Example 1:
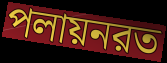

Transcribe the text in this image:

পলায়নরত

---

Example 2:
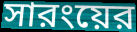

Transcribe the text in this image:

সারংয়ের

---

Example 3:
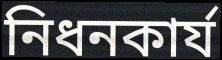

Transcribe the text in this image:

নিধনকার্য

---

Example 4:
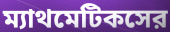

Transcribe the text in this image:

ম্যাথমেটিকসের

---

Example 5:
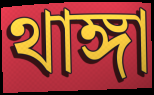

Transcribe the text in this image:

থাঙ্গা